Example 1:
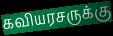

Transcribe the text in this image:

கவியரசருக்கு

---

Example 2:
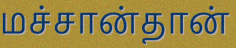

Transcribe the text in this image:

மச்சான்தான்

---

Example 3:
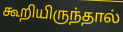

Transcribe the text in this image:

கூறியிருந்தால்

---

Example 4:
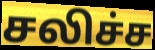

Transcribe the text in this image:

சலிச்ச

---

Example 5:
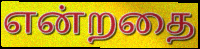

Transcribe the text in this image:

என்றதை